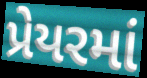
પ્રેયરમાં